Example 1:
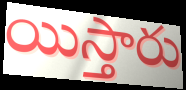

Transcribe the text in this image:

యిస్తారు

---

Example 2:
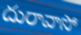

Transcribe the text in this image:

దురావాసో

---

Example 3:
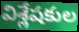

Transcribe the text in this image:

విశ్లేషకుల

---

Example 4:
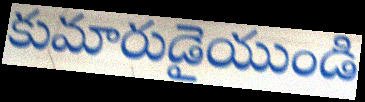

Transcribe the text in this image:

కుమారుడైయుండి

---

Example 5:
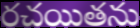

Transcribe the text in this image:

రచయితను